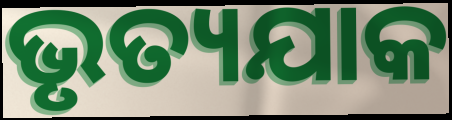
ଭୃତ୍ୟଯାକ